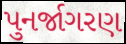
પુનર્જાગરણ